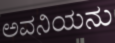
ಅವನಿಯನು